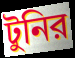
টুনির